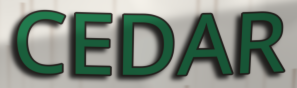
CEDAR